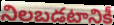
నిలబడటానికీ